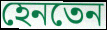
হেনতেন